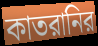
কাতরানির